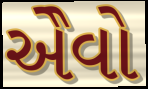
એેવો